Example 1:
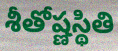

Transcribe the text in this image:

శీతోష్ణస్థితి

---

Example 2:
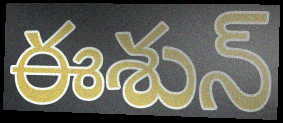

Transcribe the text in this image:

ఈశున్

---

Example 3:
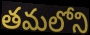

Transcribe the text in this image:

తమలోని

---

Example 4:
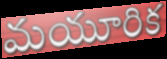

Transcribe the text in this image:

మయూరిక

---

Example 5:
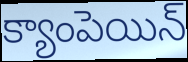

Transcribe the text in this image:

క్యాంపెయిన్